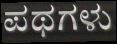
ಪಥಗಳು